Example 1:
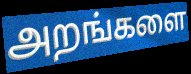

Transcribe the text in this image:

அறங்களை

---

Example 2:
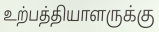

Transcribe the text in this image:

உற்பத்தியாளருக்கு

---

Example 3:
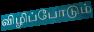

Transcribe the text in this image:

விழிப்போடும்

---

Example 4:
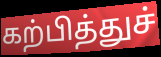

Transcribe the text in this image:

கற்பித்துச்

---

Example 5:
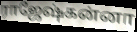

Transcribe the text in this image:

ராஜேஷ்கன்னா